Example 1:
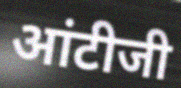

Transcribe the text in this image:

आंटीजी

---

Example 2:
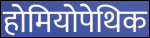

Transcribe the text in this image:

होमियोपेथिक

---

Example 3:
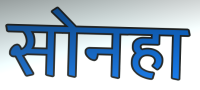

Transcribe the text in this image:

सोनहा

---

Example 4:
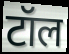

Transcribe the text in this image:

टॉल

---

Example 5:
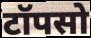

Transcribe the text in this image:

टॉपसो